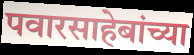
पवारसाहेबांच्या